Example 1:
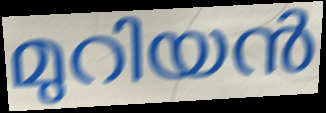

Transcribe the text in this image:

മുറിയൻ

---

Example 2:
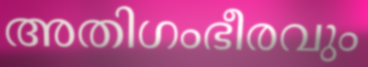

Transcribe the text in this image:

അതിഗംഭീരവും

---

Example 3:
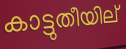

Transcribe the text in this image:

കാട്ടുതീയില്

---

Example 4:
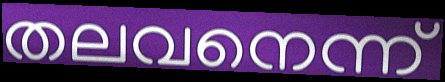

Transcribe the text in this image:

തലവനെന്ന്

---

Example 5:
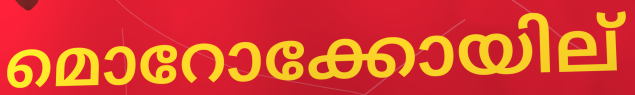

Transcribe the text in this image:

മൊറോക്കോയില്